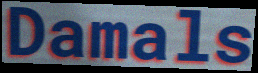
Damals